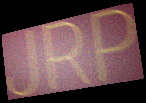
JRP